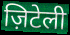
ज़िटेली